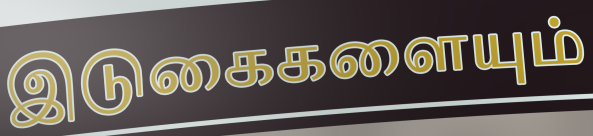
இடுகைகளையும்